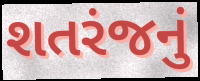
શતરંજનું